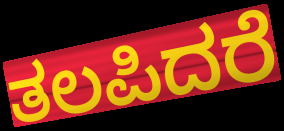
ತಲಪಿದರೆ